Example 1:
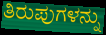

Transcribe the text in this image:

ತಿರುಪುಗಳನ್ನು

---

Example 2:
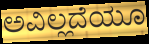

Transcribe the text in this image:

ಅವಿಲ್ಲದೆಯೂ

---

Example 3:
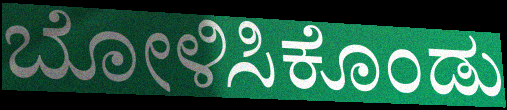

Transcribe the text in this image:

ಬೋಳಿಸಿಕೊಂಡು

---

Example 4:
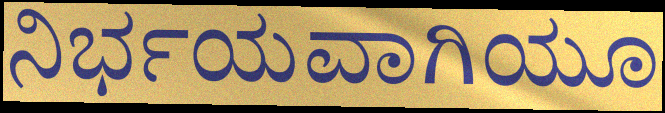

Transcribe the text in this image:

ನಿರ್ಭಯವಾಗಿಯೂ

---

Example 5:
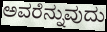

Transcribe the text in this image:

ಅವರೆನ್ನುವುದು